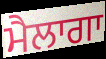
ਮੈਲਾਗਾ